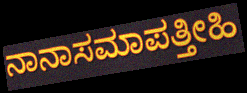
ನಾನಾಸಮಾಪತ್ತೀಹಿ